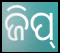
ଜିପ୍